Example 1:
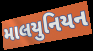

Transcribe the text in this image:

માલયુનિયન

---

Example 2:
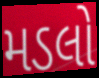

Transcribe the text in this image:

મડલો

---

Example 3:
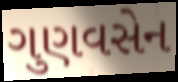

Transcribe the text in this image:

ગુણવસેન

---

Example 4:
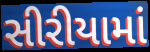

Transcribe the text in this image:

સીરીયામાં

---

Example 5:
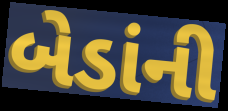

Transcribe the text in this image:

બેડાંની